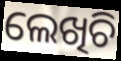
ଲେଖିଚି